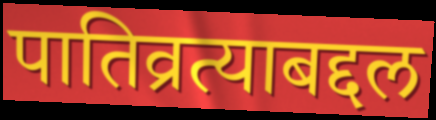
पातिव्रत्याबद्दल